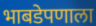
भाबडेपणाला